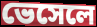
ভেসেলে